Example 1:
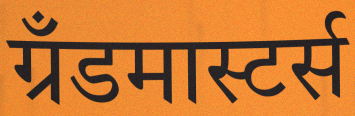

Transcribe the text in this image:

ग्रँडमास्टर्स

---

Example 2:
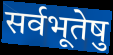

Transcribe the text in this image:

सर्वभूतेषु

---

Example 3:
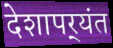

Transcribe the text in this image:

देशापर्यंत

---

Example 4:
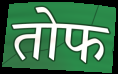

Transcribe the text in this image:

तोफ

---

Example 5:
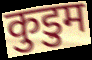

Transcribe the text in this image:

कुडुम